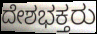
ದೇಶಭಕ್ತರು